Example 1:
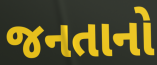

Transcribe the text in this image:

જનતાનો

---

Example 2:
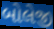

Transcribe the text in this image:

બોલેજી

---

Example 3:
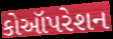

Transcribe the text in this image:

કોઑપરેશન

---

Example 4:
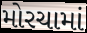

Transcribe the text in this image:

મોરચામાં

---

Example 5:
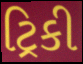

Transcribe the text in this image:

ટ્રિકી